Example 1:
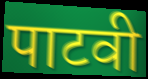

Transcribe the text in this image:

पाटवी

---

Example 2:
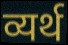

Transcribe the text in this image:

व्‍यर्थ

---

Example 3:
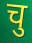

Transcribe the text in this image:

चु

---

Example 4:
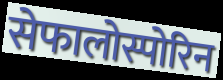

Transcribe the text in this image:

सेफालोस्पोरिन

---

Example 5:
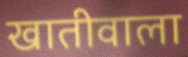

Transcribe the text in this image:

खातीवाला